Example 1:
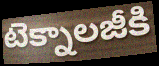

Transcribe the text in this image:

టెక్నాలజీకి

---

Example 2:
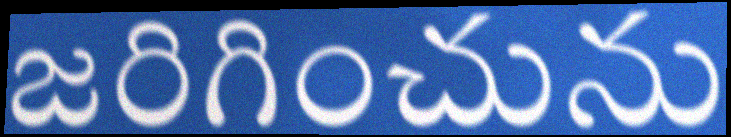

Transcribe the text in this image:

జరిగించును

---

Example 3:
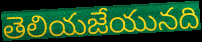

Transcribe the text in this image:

తెలియజేయునది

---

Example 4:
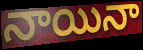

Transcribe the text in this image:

నాయినా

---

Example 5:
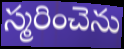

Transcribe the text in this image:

స్మరించెను